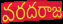
వరదరాజ